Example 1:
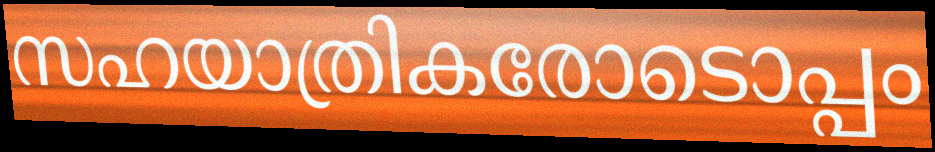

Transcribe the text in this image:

സഹയാത്രികരോടൊപ്പം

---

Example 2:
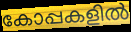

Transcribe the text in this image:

കോപ്പകളിൽ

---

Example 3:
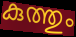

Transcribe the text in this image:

കുത്തും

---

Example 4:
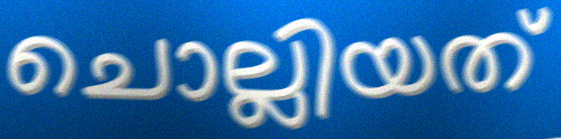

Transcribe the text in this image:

ചൊല്ലിയത്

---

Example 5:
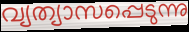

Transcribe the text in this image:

വ്യത്യാസപ്പെടുന്നു